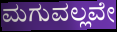
ಮಗುವಲ್ಲವೇ